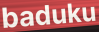
baduku